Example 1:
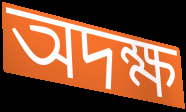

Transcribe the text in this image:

অদক্ষ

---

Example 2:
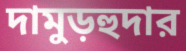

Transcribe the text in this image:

দামুড়হুদার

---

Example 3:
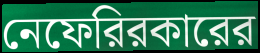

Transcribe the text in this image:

নেফেরিরকারের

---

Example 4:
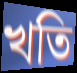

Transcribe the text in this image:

খতি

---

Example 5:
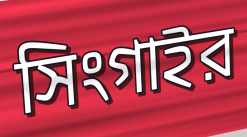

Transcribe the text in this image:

সিংগাইর